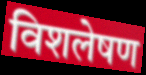
विशलेषण